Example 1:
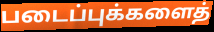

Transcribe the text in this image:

படைப்புக்களைத்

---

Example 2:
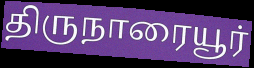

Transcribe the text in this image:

திருநாரையூர்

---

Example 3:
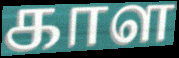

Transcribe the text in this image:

காள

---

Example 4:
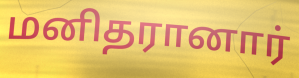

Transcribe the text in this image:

மனிதரானார்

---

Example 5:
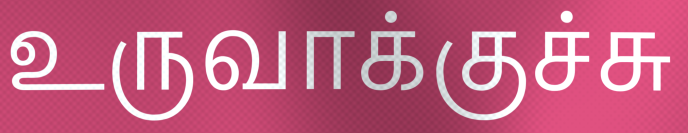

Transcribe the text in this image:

உருவாக்குச்சு